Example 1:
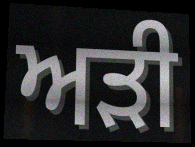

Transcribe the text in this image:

ਅੜੀ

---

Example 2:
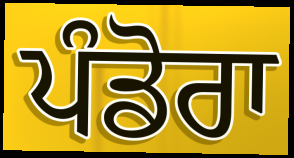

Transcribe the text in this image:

ਪੰਡੋਰਾ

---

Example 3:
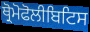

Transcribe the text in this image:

ਥ੍ਰੋਮੋਫੋਲੀਬਿਟਿਸ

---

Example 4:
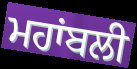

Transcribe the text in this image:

ਮਹਾਂਬਲੀ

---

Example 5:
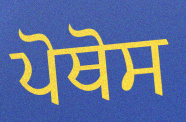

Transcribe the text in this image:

ਪੋਥੋਸ